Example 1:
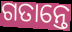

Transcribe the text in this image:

ଗତାନ୍ତେ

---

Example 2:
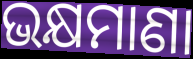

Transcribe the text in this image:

ଭକ୍ଷମାଣା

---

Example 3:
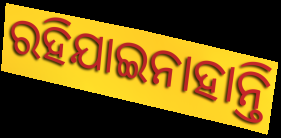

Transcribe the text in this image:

ରହିଯାଇନାହାନ୍ତି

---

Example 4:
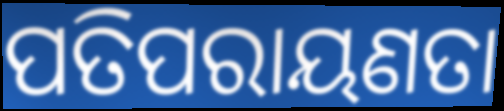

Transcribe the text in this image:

ପତିପରାୟଣତା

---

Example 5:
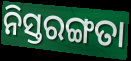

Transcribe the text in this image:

ନିସ୍ତରଙ୍ଗତା